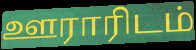
ஊராரிடம்